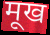
मूख